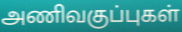
அணிவகுப்புகள்